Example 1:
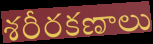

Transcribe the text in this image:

శరీరకణాలు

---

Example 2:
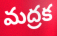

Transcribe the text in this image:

మద్రక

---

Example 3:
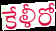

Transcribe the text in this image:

కేళీరో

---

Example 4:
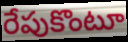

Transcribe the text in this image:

రేపుకొంటూ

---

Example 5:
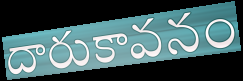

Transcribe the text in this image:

దారుకావనం